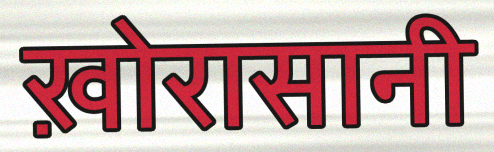
ख़ोरासानी